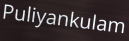
Puliyankulam